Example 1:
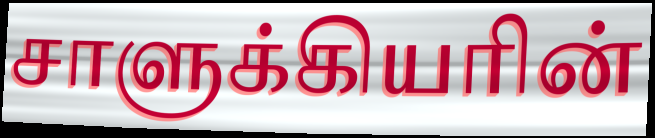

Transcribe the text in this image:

சாளுக்கியரின்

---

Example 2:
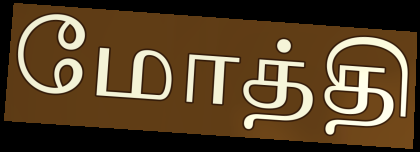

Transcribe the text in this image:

மோத்தி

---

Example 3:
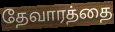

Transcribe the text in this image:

தேவாரத்தை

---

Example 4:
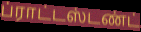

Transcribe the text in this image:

ப்ராட்டஸ்டண்ட்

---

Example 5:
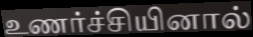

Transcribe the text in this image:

உணர்ச்சியினால்